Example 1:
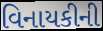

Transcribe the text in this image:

વિનાયકીની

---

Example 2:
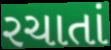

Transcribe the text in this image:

રચાતાં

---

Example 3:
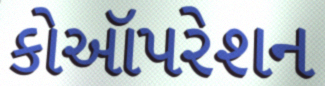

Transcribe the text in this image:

કોઑપરેશન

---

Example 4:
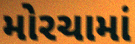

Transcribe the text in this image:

મોરચામાં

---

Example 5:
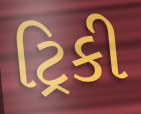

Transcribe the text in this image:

ટ્રિકી